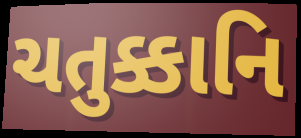
ચતુક્કાનિ